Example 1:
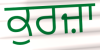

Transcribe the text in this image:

ਕੁਰਜ਼ਾ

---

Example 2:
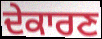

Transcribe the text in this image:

ਦੇਕਾਰਣ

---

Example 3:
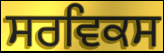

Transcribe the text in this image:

ਸਰਵਿਕਸ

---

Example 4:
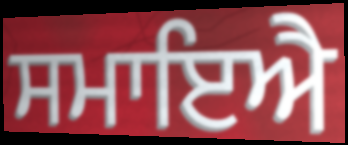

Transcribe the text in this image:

ਸਮਾਇਐ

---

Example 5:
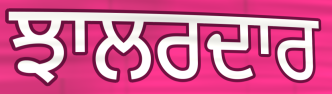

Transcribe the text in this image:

ਝਾਲਰਦਾਰ